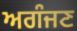
ਅਗੰਜਣ